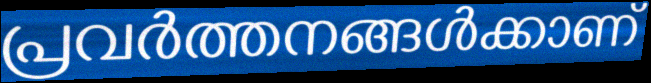
പ്രവർത്തനങ്ങൾക്കാണ്